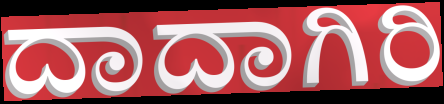
ದಾದಾಗಿರಿ